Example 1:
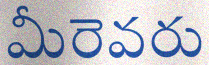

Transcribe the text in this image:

మీరెవరు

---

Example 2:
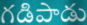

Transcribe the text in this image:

గడిపాడు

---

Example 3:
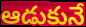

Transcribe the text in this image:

ఆడుకునే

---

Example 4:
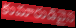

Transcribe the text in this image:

కుమారుడివైన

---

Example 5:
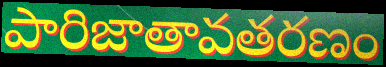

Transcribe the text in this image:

పారిజాతావతరణం